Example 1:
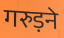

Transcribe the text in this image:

गरुड़ने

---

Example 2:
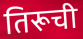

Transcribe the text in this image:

तिरूची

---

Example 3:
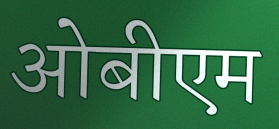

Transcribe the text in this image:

ओबीएम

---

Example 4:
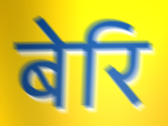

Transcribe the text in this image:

बेरि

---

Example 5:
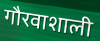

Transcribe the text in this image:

गौरवाशाली